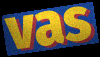
vas